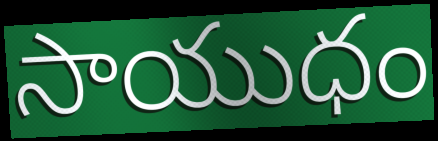
సాయుధం